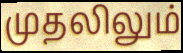
முதலிலும்